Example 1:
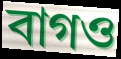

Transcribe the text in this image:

বাগও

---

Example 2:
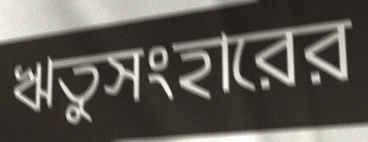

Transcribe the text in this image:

ঋতুসংহারের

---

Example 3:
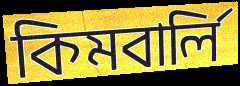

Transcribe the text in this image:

কিমবার্লি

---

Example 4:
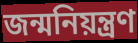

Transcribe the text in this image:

জন্মনিয়ন্ত্রণ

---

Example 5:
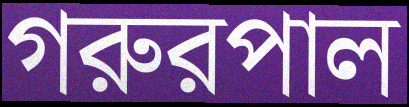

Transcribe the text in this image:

গরুরপাল